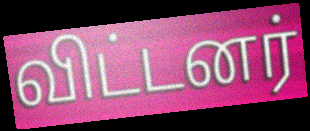
விட்டனர்